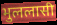
भुललासी